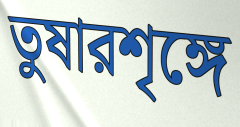
তুষারশৃঙ্গে